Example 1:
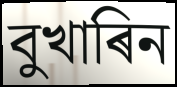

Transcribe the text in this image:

বুখাৰিন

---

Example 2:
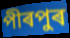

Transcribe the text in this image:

পীৰপুৰ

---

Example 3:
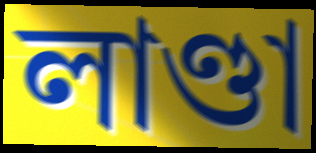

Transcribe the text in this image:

লাণ্ডা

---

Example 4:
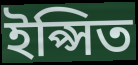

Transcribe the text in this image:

ইপ্সিত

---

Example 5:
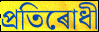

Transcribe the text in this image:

প্ৰতিৰোধী